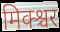
मिक्श्चर